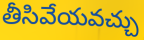
తీసివేయవచ్చు